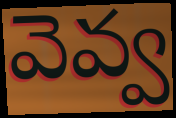
వెవ్వ